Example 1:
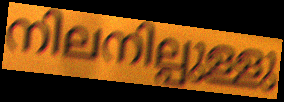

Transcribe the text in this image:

നിലനില്പുള്ളു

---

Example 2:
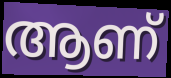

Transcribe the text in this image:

ആണ്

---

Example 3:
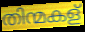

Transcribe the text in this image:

തിന്മകള്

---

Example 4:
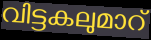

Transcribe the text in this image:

വിട്ടകലുമാറ്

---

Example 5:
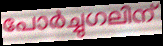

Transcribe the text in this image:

പോർച്ചുഗലിന്